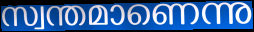
സ്വന്തമാണെന്നു